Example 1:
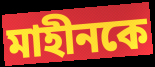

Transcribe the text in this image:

মাহীনকে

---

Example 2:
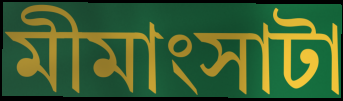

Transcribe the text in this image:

মীমাংসাটা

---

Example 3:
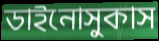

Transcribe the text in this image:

ডাইনোসুকাস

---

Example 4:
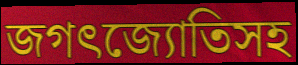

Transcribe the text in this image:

জগৎজ্যোতিসহ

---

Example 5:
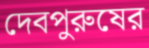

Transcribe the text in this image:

দেবপুরুষের